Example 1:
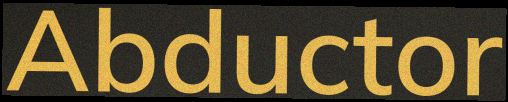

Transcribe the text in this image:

Abductor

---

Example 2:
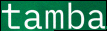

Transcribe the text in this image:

tamba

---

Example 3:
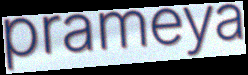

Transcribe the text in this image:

prameya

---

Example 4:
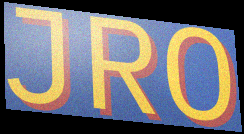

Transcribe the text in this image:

JRO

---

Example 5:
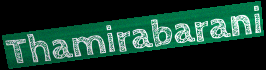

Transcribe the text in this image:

Thamirabarani